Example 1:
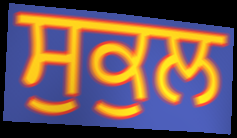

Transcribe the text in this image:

ਸੁਕੁਲ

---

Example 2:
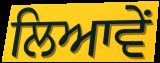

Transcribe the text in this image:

ਲਿਆਵੇਂ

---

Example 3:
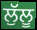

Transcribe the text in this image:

ਲੁੱਲੂ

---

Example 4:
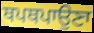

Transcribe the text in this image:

ਥਪਥਪਾਉਣਾ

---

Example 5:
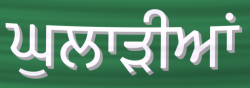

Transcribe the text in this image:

ਘੁਲਾੜੀਆਂ